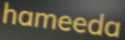
hameeda